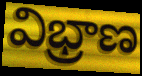
విభ్రాణ